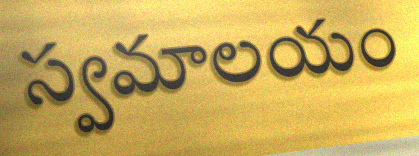
స్వమాలయం